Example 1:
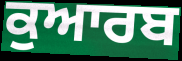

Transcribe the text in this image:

ਕੁਆਰਬ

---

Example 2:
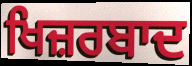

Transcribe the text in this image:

ਖਿਜ਼ਰਬਾਦ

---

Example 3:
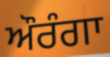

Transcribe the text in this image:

ਔਰੰਗਾ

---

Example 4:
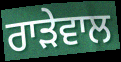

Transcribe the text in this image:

ਰਾੜੇਵਾਲ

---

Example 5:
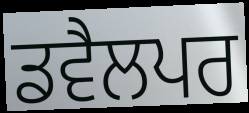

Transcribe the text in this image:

ਡਵੈਲਪਰ